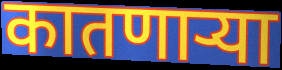
कातणाऱ्या